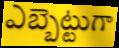
ఎబ్బెట్టుగా